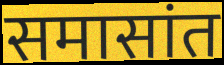
समासांत